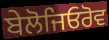
ਬੇਲੋਜਿਓਰੋਵ